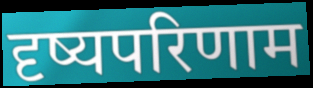
दृष्यपरिणाम